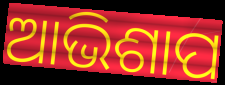
ଆଭିଶାପ